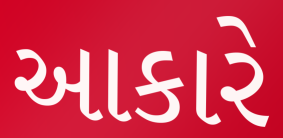
આકારે